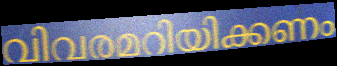
വിവരമറിയിക്കണം